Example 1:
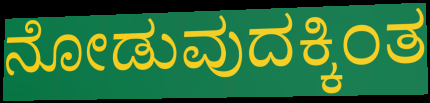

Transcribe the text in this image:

ನೋಡುವುದಕ್ಕಿಂತ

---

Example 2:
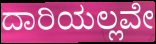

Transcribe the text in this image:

ದಾರಿಯಲ್ಲವೇ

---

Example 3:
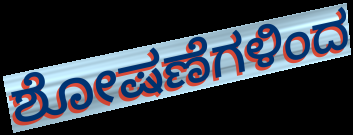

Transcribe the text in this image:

ಶೋಷಣೆಗಳಿಂದ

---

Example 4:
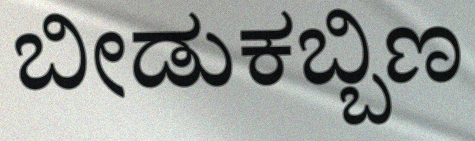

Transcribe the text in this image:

ಬೀಡುಕಬ್ಬಿಣ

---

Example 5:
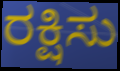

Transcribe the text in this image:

ರಕ್ಷಿಸು